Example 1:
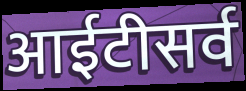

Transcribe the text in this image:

आईटीसर्व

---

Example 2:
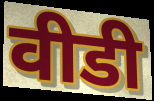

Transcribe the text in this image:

वीडी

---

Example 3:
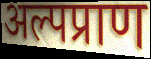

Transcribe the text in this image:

अल्पप्राण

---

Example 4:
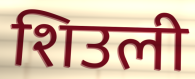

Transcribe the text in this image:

शिउली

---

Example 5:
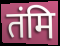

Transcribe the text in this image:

तंमि